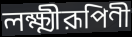
লক্ষ্মীরূপিণী